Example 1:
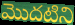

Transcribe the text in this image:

మొదటిని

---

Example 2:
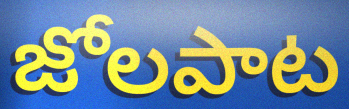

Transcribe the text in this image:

జోలపాట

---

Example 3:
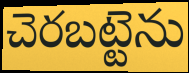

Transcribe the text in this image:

చెరబట్టెను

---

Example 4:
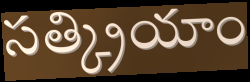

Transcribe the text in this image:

సత్క్రియాం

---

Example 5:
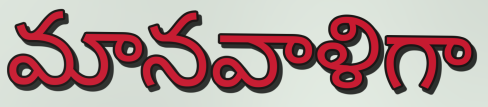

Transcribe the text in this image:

మానవాళిగా